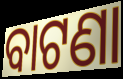
ବାଟଣା